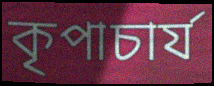
কৃপাচার্য